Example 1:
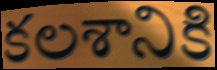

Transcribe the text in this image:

కలశానికి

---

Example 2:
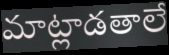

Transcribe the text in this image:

మాట్లాడతాలే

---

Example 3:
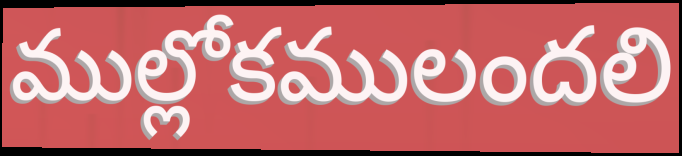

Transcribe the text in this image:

ముల్లోకములందలి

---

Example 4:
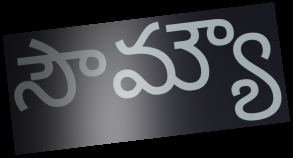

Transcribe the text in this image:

సౌమ్యౌ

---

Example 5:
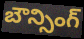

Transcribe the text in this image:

బౌన్సింగ్